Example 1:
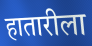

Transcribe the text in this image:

हातारीला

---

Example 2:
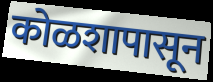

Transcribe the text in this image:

कोळशापासून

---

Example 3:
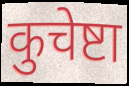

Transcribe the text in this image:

कुचेष्टा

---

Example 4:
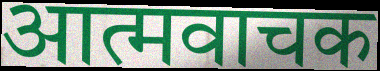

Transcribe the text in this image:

आत्मवाचक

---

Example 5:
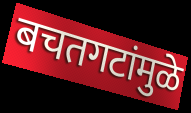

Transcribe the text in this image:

बचतगटांमुळे